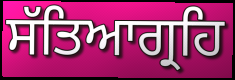
ਸੱਤਿਆਗ੍ਰਹਿ